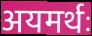
अयमर्थः